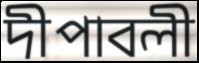
দীপাবলী